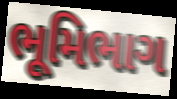
ભૂમિભાગ